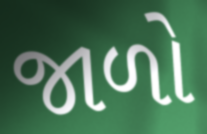
જાળો